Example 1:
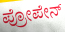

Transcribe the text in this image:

ಪ್ರೋಪೇನ್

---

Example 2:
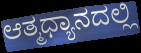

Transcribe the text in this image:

ಆತ್ಮಧ್ಯಾನದಲ್ಲಿ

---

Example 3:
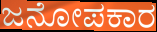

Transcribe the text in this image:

ಜನೋಪಕಾರ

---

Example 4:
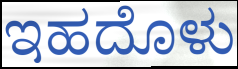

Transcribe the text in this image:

ಇಹದೊಳು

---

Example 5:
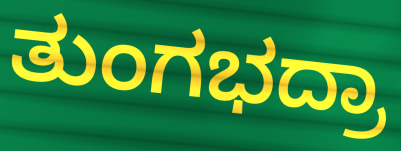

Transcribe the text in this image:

ತುಂಗಭದ್ರಾ